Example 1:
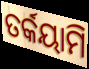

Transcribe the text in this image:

ତର୍କୟାମି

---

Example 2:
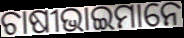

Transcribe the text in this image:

ଚାଷୀଭାଇମାନେ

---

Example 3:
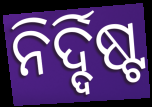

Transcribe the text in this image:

ନିର୍ଦ୍ଦିଷ୍ଟ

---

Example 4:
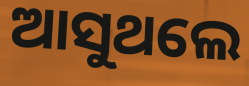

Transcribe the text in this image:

ଆସୁଥଲେ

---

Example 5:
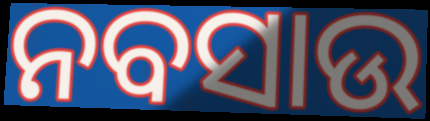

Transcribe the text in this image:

ନବସାଉ